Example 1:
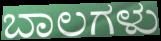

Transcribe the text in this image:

ಬಾಲಗಳು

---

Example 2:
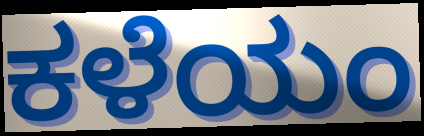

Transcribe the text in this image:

ಕಳೆಯಂ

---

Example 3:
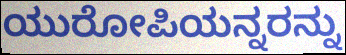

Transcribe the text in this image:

ಯುರೋಪಿಯನ್ನರನ್ನು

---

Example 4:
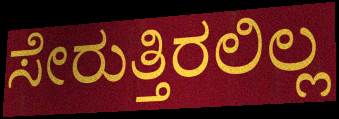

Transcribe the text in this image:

ಸೇರುತ್ತಿರಲಿಲ್ಲ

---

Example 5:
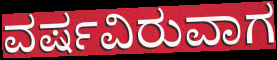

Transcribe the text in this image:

ವರ್ಷವಿರುವಾಗ